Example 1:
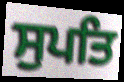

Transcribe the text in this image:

ਸੁਪਤਿ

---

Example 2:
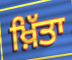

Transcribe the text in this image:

ਖ਼ਿੱਤਾ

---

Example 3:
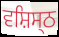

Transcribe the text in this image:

ਵਸ਼ਿਸ੍ਠ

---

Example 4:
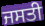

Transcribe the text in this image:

ਜਸਤੀ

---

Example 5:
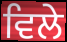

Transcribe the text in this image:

ਵਿਲੇ